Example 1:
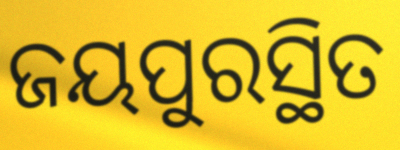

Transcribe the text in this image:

ଜୟପୁରସ୍ଥିତ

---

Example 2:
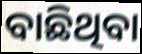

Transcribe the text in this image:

ବାଛିଥିବା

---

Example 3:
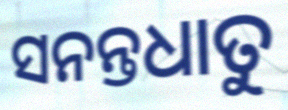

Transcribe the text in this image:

ସନନ୍ତଧାତୁ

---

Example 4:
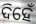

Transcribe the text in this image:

ଦିହେଁ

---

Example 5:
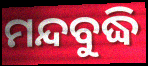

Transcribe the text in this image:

ମନ୍ଦବୁଦ୍ଧି